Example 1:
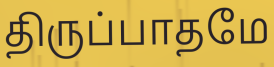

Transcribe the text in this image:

திருப்பாதமே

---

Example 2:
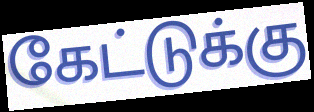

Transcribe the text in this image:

கேட்டுக்கு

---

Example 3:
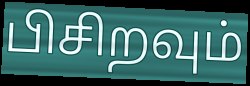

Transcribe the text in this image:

பிசிறவும்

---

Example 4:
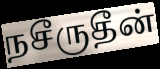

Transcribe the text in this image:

நசீருதீன்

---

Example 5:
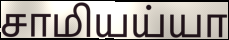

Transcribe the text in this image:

சாமியய்யா